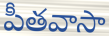
పీతవాసా